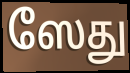
ஸேது